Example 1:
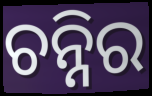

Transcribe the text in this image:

ଚନ୍ନିର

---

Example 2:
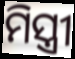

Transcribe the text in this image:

ମିସ୍ତ୍ରୀ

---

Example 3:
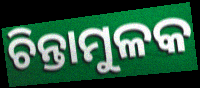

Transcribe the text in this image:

ଚିନ୍ତାମୁଳକ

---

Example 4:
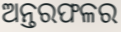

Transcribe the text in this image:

ଅନ୍ତରଫଳର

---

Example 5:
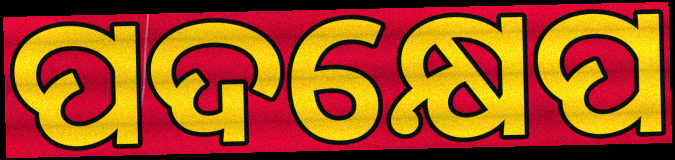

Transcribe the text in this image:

ପଦକ୍ଷେପ